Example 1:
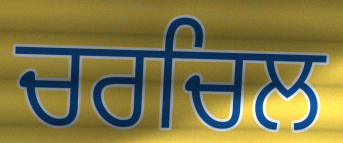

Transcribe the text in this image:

ਚਰਚਿਲ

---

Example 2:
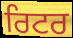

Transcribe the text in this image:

ਰਿਟਰ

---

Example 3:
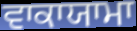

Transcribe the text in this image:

ਵਾਕਾਯਾਮਾ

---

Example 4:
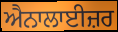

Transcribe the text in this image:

ਐਨਾਲਾਈਜ਼ਰ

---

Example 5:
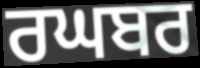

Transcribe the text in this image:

ਰਘਬਰ